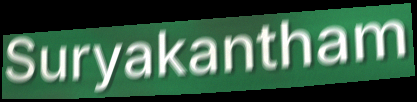
Suryakantham